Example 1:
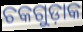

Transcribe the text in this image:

ଚକଗୁଡ଼ାକ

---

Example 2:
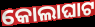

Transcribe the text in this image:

କୋଲାଘାଟ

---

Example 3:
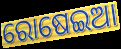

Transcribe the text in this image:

ରୋଷେଇଆ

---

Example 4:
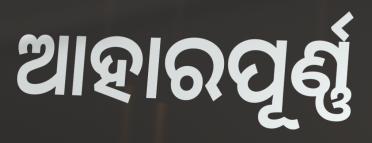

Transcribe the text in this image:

ଆହାରପୂର୍ଣ୍ଣ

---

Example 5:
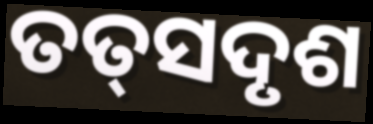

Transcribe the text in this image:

ତତ୍‌ସଦୃଶ